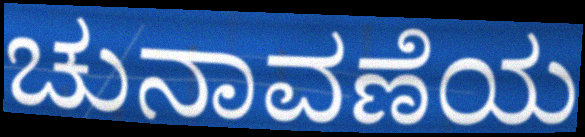
ಚುನಾವಣೆಯ